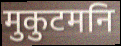
मुकुटमनि